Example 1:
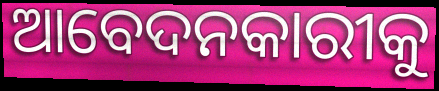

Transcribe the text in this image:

ଆବେଦନକାରୀକୁ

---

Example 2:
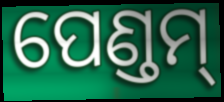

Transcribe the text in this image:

ପେଣ୍ଡମ୍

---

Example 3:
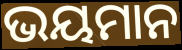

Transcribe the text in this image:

ଭୟମାନ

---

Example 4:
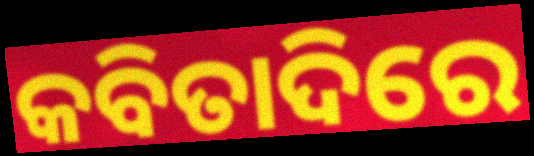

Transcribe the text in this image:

କବିତାଦିରେ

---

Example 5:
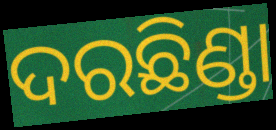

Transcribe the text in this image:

ଦରଛିଣ୍ଡା